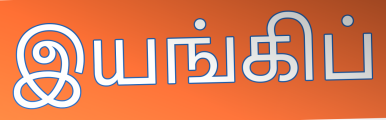
இயங்கிப்